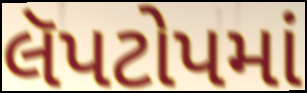
લૅપટોપમાં